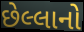
છેલ્લાનો